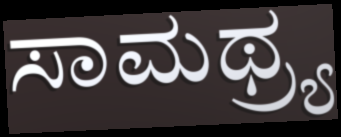
ಸಾಮಥ್ರ್ಯ